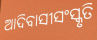
ଆଦିବାସୀସଂସ୍କୃତି